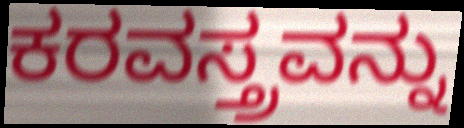
ಕರವಸ್ತ್ರವನ್ನು